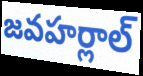
జవహర్లాల్